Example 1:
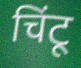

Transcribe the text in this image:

चिंटू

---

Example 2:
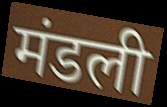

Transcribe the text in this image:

मंडली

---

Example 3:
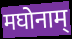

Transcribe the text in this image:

मघोनाम्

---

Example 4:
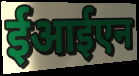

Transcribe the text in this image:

ईआईएन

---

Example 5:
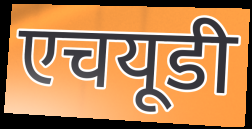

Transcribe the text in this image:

एचयूडी